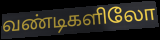
வண்டிகளிலோ